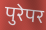
पुरेपर